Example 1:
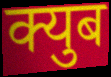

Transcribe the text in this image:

क्युब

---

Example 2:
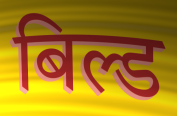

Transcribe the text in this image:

बिल्ड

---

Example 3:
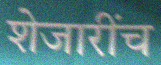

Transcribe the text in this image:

शेजारींच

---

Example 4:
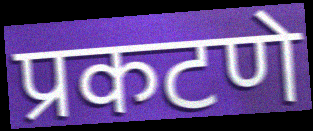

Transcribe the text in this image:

प्रकटणे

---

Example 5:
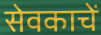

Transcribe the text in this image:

सेवकाचें